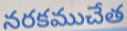
నరకముచేత